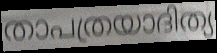
താപത്രയാദിത്യ